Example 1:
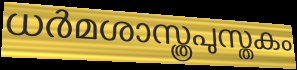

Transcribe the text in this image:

ധർമശാസ്ത്രപുസ്തകം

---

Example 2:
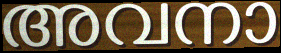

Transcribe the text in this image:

അവനാ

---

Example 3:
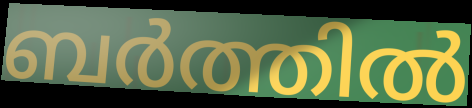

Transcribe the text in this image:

ബർത്തിൽ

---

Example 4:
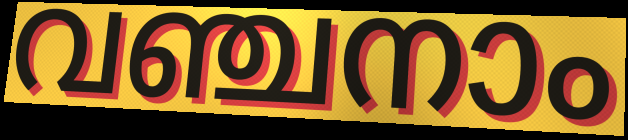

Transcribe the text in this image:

വഞ്ചനാം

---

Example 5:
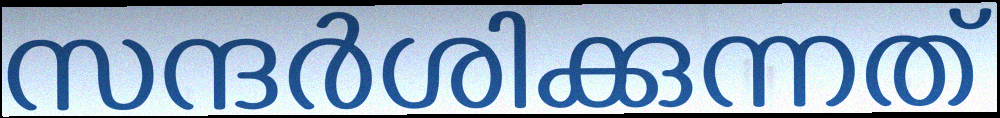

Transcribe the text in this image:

സന്ദർശിക്കുന്നത്